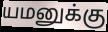
யமனுக்கு